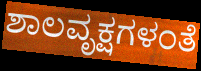
ಶಾಲವೃಕ್ಷಗಳಂತೆ